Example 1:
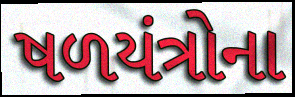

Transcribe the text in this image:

ષળયંત્રોના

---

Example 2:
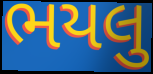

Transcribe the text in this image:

ભયલુ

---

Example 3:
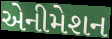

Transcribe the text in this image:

એનીમેશન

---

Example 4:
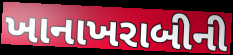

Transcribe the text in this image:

ખાનાખરાબીની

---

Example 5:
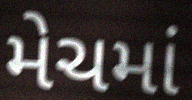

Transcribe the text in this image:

મેચમાં